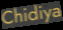
Chidiya